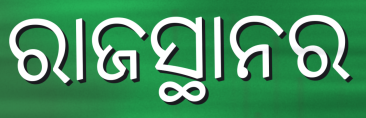
ରାଜସ୍ଥାନର